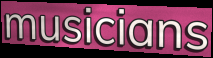
musicians